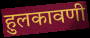
हुलकावणी